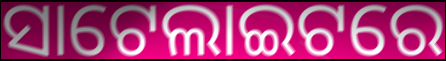
ସାଟେଲାଇଟରେ